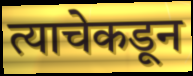
त्याचेकडून